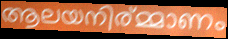
ആലയനിര്മ്മാണം